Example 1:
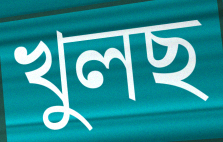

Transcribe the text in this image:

খুলছ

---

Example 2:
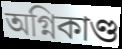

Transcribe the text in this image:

অগ্নিকাণ্ড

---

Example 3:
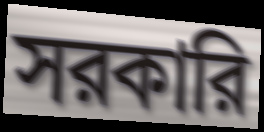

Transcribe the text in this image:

সরকারি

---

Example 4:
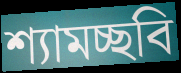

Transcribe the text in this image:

শ্যামচ্ছবি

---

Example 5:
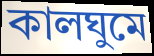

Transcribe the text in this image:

কালঘুমে